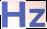
Hz